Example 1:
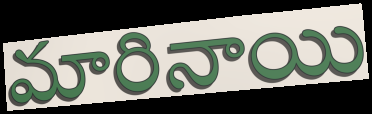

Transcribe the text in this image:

మారినాయి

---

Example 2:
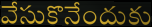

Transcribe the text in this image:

వేసుకొనేందుకు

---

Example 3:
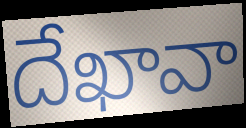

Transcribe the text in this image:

దేఖావా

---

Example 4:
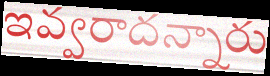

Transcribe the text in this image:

ఇవ్వరాదన్నారు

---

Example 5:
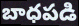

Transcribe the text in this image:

బాధపడి